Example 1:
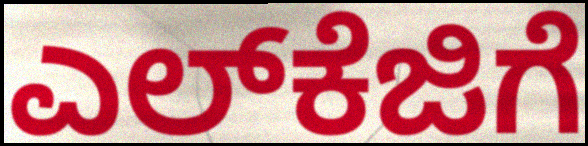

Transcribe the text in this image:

ಎಲ್‌ಕೆಜಿಗೆ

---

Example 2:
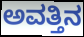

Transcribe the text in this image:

ಅವತ್ತಿನ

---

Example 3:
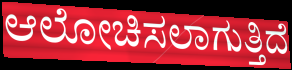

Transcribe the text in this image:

ಆಲೋಚಿಸಲಾಗುತ್ತಿದೆ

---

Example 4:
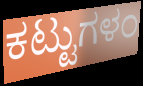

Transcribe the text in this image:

ಕಟ್ಟುಗಳಂ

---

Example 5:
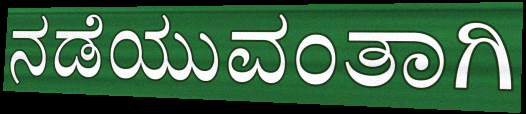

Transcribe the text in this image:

ನಡೆಯುವಂತಾಗಿ